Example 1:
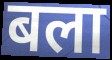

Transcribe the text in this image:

बला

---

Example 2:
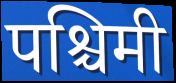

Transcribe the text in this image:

पश्चिमी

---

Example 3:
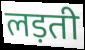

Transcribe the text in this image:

लड़ती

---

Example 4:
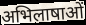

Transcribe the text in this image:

अभिलाषाओं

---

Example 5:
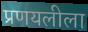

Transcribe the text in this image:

प्रणयलीला